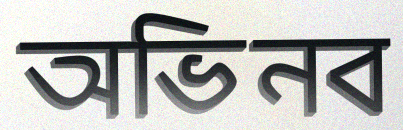
অভিনব